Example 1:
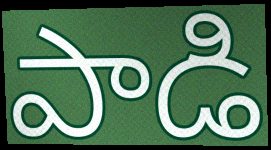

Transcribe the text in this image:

పాడి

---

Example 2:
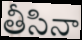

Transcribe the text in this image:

తీసినా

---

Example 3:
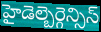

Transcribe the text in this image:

హైడెల్బెర్గెన్సిస్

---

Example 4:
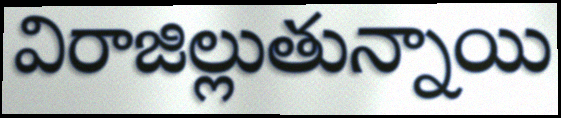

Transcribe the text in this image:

విరాజిల్లుతున్నాయి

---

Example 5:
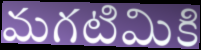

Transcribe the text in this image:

మగటిమికి